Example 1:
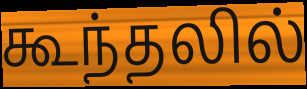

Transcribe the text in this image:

கூந்தலில்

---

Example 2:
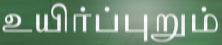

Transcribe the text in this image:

உயிர்ப்புறும்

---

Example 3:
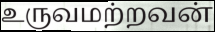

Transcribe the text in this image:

உருவமற்றவன்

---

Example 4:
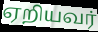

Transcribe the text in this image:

ஏறியவர்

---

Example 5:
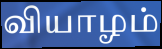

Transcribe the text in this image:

வியாழம்